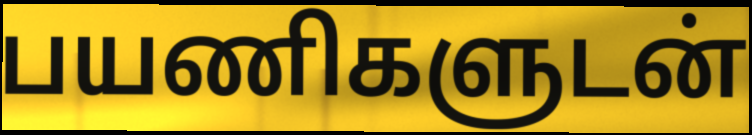
பயணிகளுடன்